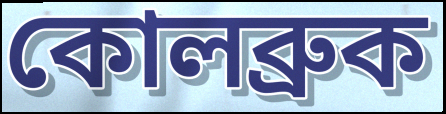
কোলব্রুক